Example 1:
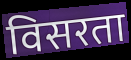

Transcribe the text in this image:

विसरता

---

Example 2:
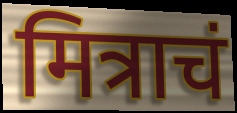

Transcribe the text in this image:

मित्राचं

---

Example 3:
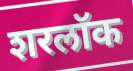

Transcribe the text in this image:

शरलॉक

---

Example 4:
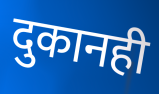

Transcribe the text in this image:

दुकानही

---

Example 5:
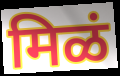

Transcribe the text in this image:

मिळं